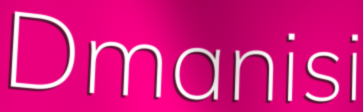
Dmanisi